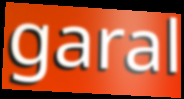
garal